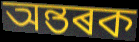
অন্তৰক